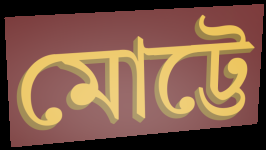
মোট্টে